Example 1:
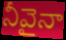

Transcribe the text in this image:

నీవైనా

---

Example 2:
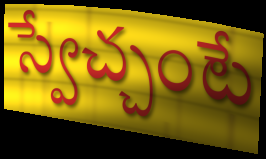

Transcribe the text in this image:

స్వేచ్చంటే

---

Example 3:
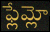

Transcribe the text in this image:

ఫ్లేమ్లో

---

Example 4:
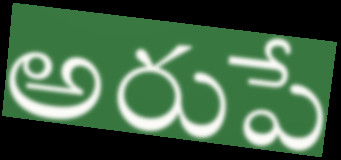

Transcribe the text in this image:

అరుపే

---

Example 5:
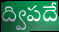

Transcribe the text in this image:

ద్విపదే